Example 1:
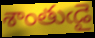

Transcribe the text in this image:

శాంతుఁడై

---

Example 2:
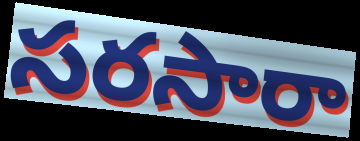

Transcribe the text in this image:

సరసారా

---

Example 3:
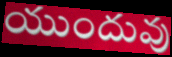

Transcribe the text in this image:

యుందువు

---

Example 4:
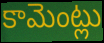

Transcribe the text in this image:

కామెంట్లు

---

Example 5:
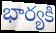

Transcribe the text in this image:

భార్యకి